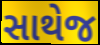
સાથેજ